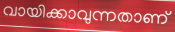
വായിക്കാവുന്നതാണ്